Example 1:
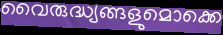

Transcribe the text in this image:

വൈരുദ്ധ്യങ്ങളുമൊക്കെ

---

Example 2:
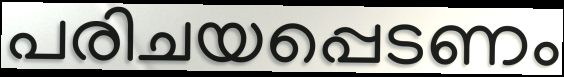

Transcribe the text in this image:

പരിചയപ്പെടണം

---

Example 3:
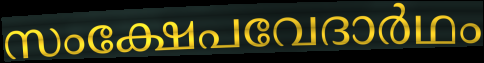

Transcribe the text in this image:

സംക്ഷേപവേദാർഥം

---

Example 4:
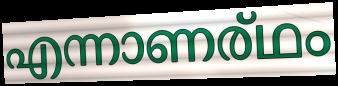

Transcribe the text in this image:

എന്നാണര്ഥം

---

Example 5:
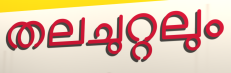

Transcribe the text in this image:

തലചുറ്റലും